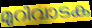
മുറിവാടക